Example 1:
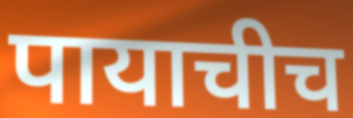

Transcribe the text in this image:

पायाचीच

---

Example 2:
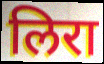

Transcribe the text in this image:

लिरा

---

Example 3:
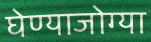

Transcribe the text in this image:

घेण्याजोग्या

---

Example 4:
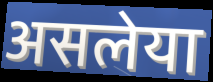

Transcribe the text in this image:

असलेया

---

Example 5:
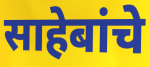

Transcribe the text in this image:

साहेबांचे